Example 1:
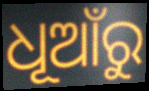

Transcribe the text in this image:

ଧୂଆଁରୁ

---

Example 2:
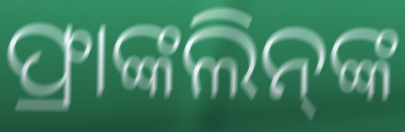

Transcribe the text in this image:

ଫ୍ରାଙ୍କଲିନ୍‌ଙ୍କ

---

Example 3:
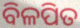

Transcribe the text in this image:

ବିଳପିତ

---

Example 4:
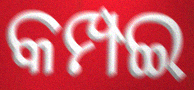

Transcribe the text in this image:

କମ୍ପଇ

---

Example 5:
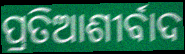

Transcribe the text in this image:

ପ୍ରତିଆଶୀର୍ବାଦ